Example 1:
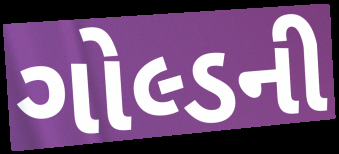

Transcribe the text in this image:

ગોલ્ડની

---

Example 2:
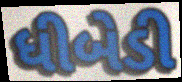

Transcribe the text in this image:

ધીબેડી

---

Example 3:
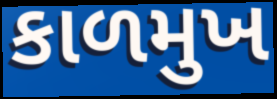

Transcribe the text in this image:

કાળમુખ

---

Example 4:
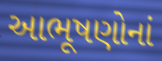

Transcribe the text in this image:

આભૂષણોનાં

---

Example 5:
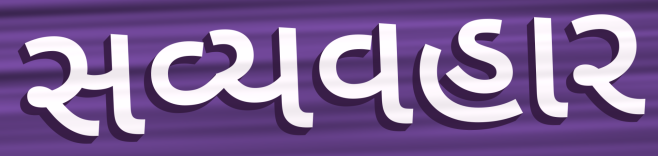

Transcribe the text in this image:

સવ્યવહાર